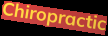
Chiropractic